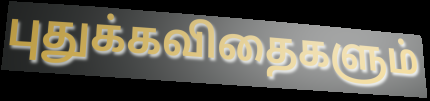
புதுக்கவிதைகளும்